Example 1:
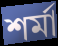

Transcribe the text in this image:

শর্মা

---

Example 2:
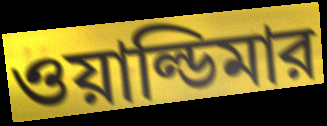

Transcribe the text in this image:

ওয়াল্ডিমার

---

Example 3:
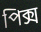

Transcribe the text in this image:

পিক্স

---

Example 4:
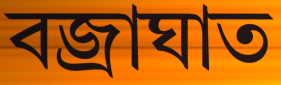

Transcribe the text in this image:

বজ্রাঘাত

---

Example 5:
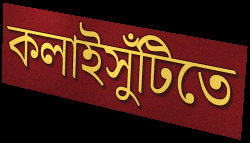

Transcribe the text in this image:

কলাইসুঁটিতে